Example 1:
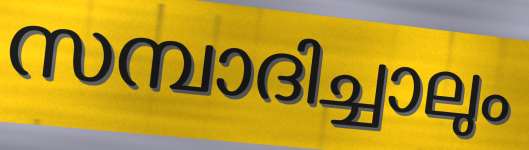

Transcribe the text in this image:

സമ്പാദിച്ചാലും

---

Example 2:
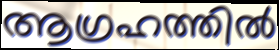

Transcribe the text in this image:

ആഗ്രഹത്തിൽ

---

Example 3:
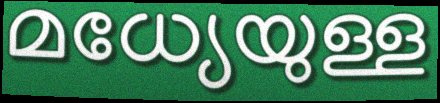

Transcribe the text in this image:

മധ്യേയുള്ള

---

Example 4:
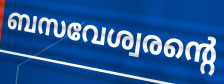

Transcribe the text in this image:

ബസവേശ്വരന്റെ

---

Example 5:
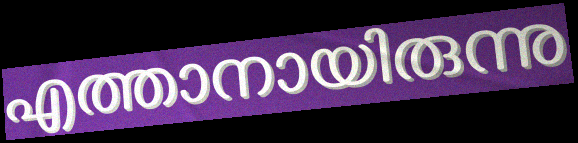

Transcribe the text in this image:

എത്താനായിരുന്നു